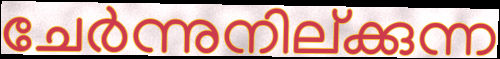
ചേർന്നുനില്ക്കുന്ന